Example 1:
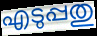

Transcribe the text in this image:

എടുപ്പതു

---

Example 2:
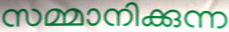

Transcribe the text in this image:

സമ്മാനിക്കുന്ന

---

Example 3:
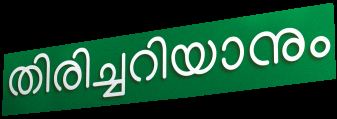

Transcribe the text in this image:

തിരിച്ചറിയാനും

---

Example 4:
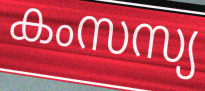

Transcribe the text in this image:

കംസസ്യ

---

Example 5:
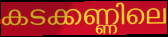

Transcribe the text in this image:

കടക്കണ്ണിലെ